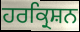
ਹਰਕ੍ਰਿਸ਼ਨ